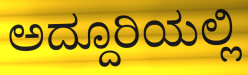
ಅದ್ದೂರಿಯಲ್ಲಿ